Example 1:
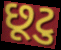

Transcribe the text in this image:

છૂટુ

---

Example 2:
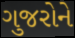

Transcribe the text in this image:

ગુજરોને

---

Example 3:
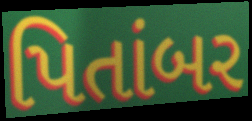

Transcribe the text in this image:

પિતાંબર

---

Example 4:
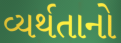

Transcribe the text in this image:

વ્યર્થતાનો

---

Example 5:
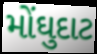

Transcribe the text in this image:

મોંઘુદાટ